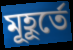
মূহূর্তে